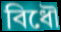
বিধৌ